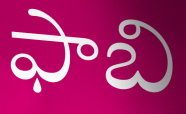
ఫాబి